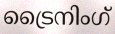
ട്രൈനിംഗ്